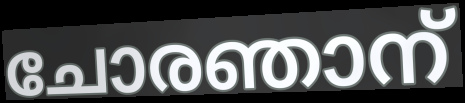
ചോരഞാന്